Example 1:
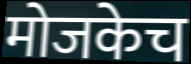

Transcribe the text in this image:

मोजकेच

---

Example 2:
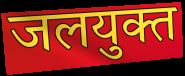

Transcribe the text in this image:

जलयुक्त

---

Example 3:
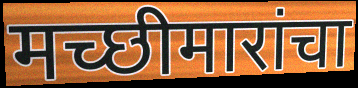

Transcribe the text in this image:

मच्छीमारांचा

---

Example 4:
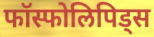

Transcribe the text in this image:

फॉस्फोलिपिड्स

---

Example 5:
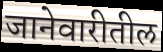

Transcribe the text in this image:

जानेवारीतील